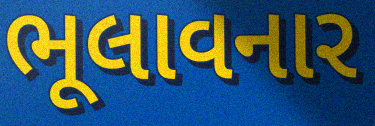
ભૂલાવનાર